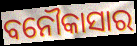
ବନୌକାସାର